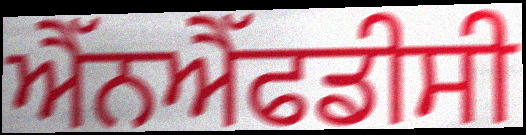
ਐੱਨਐੱਫਡੀਸੀ